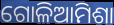
ଗୋଳିଆମିଶା